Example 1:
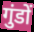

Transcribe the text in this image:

गुंडों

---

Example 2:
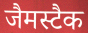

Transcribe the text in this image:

जैमस्टैक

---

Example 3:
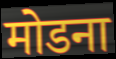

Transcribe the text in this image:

मोडना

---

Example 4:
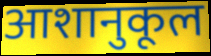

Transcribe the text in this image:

आशानुकूल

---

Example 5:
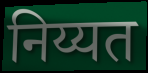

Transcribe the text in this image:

निय्यत